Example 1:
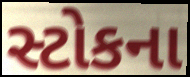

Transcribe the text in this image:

સ્ટોકના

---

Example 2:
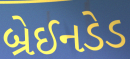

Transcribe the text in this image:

બ્રેઈનડેડ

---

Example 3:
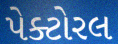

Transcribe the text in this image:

પેક્ટોરલ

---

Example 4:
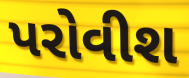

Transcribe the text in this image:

પરોવીશ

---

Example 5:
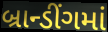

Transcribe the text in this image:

બ્રાન્ડીંગમાં